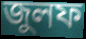
জুলফ